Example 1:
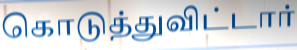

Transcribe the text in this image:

கொடுத்துவிட்டார்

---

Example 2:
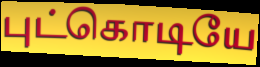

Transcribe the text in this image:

புட்கொடியே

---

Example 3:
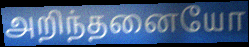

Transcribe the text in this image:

அறிந்தனையோ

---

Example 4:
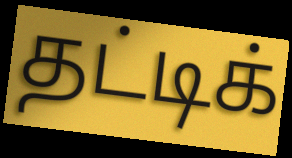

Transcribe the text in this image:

தட்டிக்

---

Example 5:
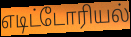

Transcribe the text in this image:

எடிட்டோரியல்